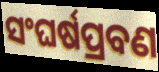
ସଂଘର୍ଷପ୍ରବଣ